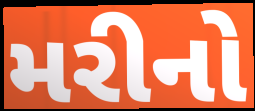
મરીનો